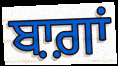
ਬ਼ਾਗ਼ਾਂ